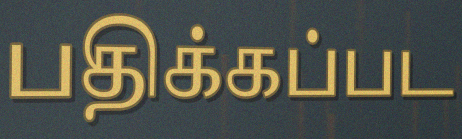
பதிக்கப்பட